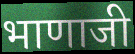
भाणाजी